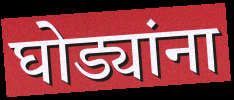
घोड्यांना